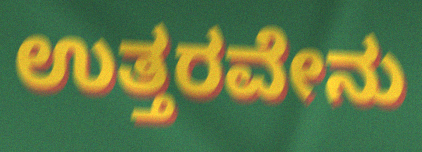
ಉತ್ತರವೇನು